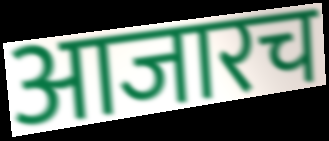
आजारच